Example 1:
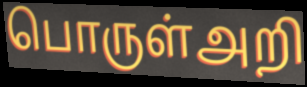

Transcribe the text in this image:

பொருள்அறி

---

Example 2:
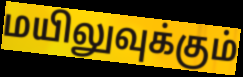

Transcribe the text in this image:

மயிலுவுக்கும்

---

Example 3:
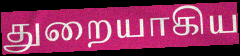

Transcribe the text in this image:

துறையாகிய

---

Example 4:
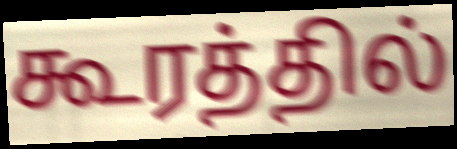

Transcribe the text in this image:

கூரத்தில்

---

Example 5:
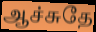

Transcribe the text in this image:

ஆச்சுதே